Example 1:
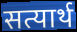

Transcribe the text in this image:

सत्यार्थ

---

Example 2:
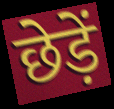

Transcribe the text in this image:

छेड़ें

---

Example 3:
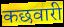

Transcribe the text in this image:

कछवारी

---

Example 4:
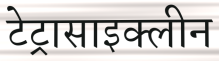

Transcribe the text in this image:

टेट्रासाइक्लीन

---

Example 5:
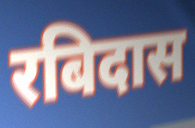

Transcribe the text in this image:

रबिदास